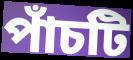
পাঁচটি